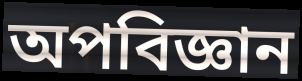
অপবিজ্ঞান